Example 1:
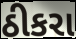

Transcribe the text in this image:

ઠીકરા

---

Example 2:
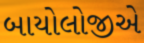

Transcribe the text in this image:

બાયોલોજીએ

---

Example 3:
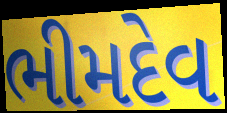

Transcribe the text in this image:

ભીમદેવ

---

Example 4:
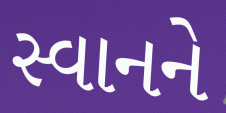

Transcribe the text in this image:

સ્વાનને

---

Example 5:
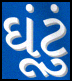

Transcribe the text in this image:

ઘૂંટું